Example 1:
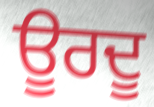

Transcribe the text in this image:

ਊਰਦੂ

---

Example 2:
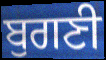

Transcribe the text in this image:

ਬੁਗਣੀ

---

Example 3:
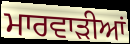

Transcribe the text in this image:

ਮਾਰਵਾੜੀਆਂ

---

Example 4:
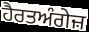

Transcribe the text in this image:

ਹੈਰਤਅੰਗੇਜ਼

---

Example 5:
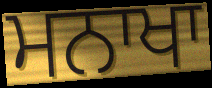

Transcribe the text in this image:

ਮਨਾਖਾ